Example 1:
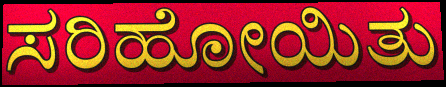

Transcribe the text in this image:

ಸರಿಹೋಯಿತು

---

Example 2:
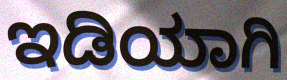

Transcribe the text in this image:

ಇಡಿಯಾಗಿ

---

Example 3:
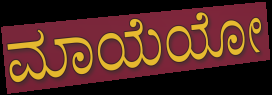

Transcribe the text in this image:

ಮಾಯೆಯೋ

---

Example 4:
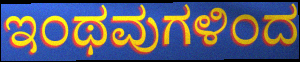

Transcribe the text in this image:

ಇಂಥವುಗಳಿಂದ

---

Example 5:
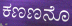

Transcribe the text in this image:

ಕಣಣನೊ